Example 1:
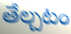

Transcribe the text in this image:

తేల్చటం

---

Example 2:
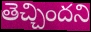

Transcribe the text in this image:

తెచ్చిందని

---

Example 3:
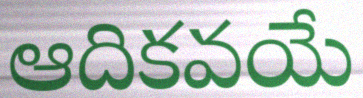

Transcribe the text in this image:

ఆదికవయే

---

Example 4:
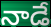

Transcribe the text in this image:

నాడే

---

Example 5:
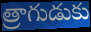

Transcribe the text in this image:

త్రాగుడుకు